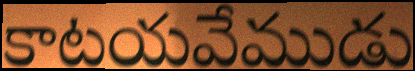
కాటయవేముడు